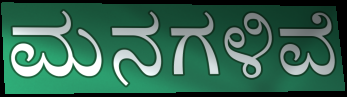
ಮನಗಳಿವೆ